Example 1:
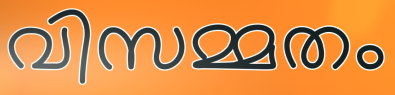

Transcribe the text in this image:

വിസമ്മതം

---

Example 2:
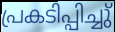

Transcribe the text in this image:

പ്രകടിപ്പിച്ചു്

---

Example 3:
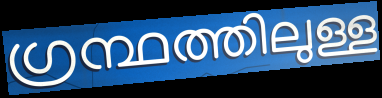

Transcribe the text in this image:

ഗ്രന്ഥത്തിലുള്ള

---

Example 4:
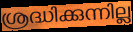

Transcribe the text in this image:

ശ്രദ്ധിക്കുന്നില്ല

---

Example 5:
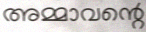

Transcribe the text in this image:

അമ്മാവന്റെ